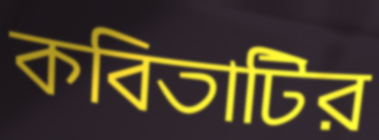
কবিতাটির